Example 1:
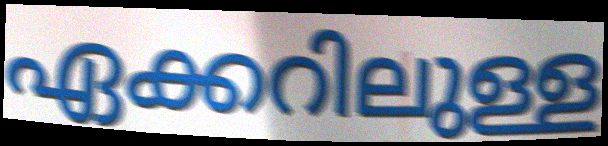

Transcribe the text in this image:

ഏക്കറിലുള്ള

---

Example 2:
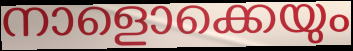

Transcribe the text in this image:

നാളൊക്കെയും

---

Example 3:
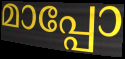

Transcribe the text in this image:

മാപ്പോ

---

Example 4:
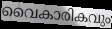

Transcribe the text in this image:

വൈകാരികവും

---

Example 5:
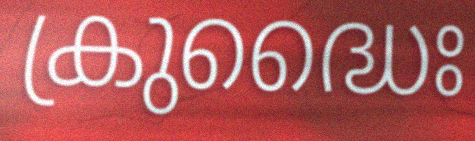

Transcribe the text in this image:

ക്രുദ്ധൈഃ